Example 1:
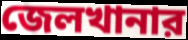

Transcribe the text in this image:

জেলখানার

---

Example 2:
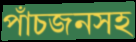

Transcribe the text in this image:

পাঁচজনসহ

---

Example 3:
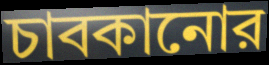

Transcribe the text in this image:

চাবকানোর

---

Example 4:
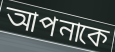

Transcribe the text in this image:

আপনাকে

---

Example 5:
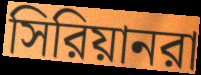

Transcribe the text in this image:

সিরিয়ানরা